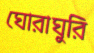
ঘোরাঘুরি